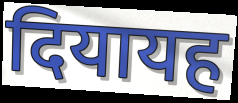
दियायह